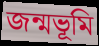
জন্মভূমি